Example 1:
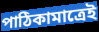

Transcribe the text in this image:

পাঠিকামাত্রেই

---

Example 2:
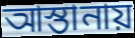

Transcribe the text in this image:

আস্তানায়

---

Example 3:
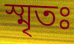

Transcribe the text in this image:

স্মৃতঃ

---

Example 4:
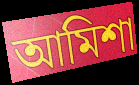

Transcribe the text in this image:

আমিশা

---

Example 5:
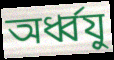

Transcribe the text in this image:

অর্ধ্বযু